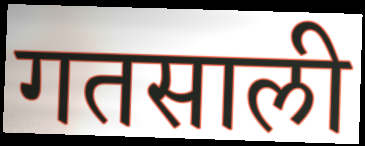
गतसाली